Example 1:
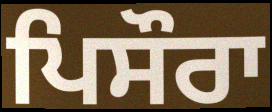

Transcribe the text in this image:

ਪਿਸੌਰਾ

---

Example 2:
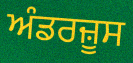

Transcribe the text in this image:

ਅੰਡਰਜ਼ੂਸ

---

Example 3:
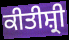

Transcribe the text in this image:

ਕੀਤੀਸ਼੍ਰੀ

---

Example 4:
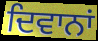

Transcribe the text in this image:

ਦਿਵਾਨਾਂ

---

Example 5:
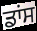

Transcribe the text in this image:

ਡਾਂਸ